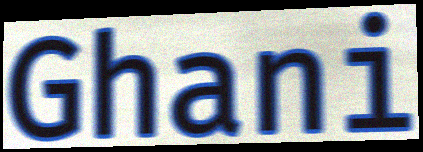
Ghani